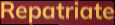
Repatriate